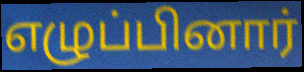
எழுப்பினார்